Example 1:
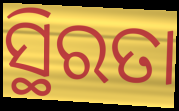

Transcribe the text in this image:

ସ୍ଥିରତା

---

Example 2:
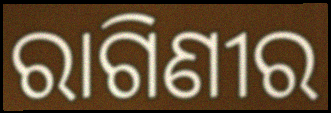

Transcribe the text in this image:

ରାଗିଣୀର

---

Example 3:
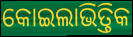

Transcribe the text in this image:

କୋଇଲାଭିତ୍ତିକ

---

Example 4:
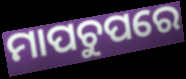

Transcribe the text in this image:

ମାପଚୁପରେ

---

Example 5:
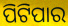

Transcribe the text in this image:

ପିଟିପାର